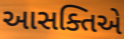
આસક્તિએ